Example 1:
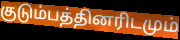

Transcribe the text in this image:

குடும்பத்தினரிடமும்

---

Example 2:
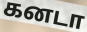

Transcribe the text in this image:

கனடா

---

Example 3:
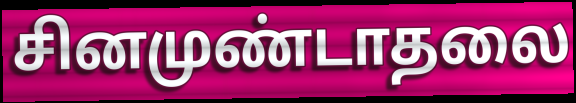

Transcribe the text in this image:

சினமுண்டாதலை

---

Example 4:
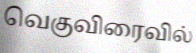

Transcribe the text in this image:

வெகுவிரைவில்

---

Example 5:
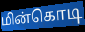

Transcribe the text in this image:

மின்கொடி